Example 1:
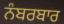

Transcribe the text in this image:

ਨੰਬਰਬਾਰ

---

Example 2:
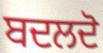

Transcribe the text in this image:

ਬਦਲਦੋ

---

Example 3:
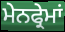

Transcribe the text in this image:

ਮੇਨਫ੍ਰੇਮਾਂ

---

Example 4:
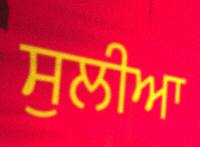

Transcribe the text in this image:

ਸੁਲੀਆ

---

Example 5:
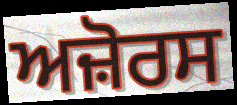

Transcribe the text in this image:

ਅਜ਼ੋਰਸ